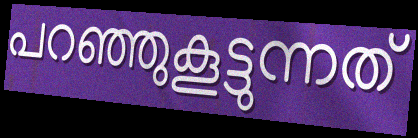
പറഞ്ഞുകൂട്ടുന്നത്